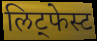
लिट्फेस्ट